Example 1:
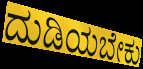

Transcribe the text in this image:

ದುಡಿಯಬೇಕು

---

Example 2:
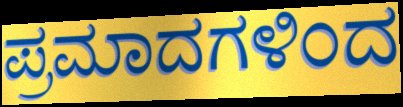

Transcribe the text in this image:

ಪ್ರಮಾದಗಳಿಂದ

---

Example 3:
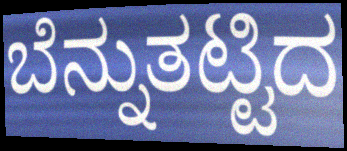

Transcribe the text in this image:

ಬೆನ್ನುತಟ್ಟಿದ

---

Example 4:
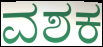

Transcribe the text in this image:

ವಶಕ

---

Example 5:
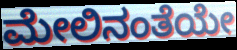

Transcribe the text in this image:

ಮೇಲಿನಂತೆಯೇ